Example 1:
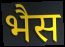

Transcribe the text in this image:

भैस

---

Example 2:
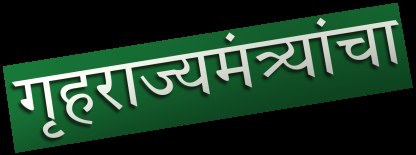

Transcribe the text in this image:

गृहराज्यमंत्र्यांचा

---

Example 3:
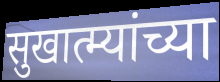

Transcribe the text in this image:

सुखात्म्यांच्या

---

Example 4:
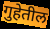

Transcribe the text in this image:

गुहेतील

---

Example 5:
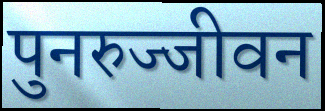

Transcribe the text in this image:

पुनरुज्‍जीवन